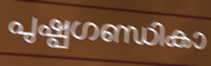
പുഷ്പഗണ്ഡികാ